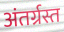
अंतर्ग्रस्त